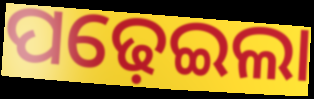
ପଢ଼େଇଲା